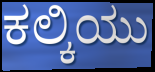
ಕಲ್ಕಿಯು